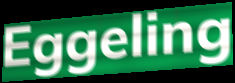
Eggeling